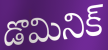
డొమినిక్